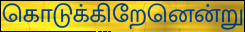
கொடுக்கிறேனென்று